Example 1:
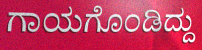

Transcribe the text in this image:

ಗಾಯಗೊಂಡಿದ್ದು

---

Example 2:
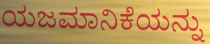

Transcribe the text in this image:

ಯಜಮಾನಿಕೆಯನ್ನು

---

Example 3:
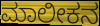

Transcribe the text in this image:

ಮಾಲೀಕನ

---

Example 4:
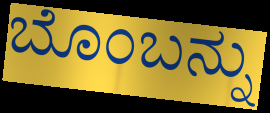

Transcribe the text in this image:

ಬೊಂಬನ್ನು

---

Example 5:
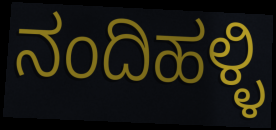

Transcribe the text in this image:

ನಂದಿಹಳ್ಳಿ